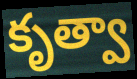
కృత్వా